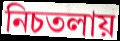
নিচতলায়